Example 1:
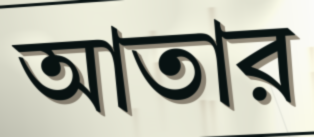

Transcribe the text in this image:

আতার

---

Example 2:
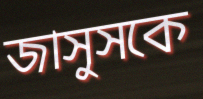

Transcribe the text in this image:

জাসুসকে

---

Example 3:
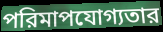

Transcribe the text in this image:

পরিমাপযোগ্যতার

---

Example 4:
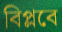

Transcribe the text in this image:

বিপ্লবে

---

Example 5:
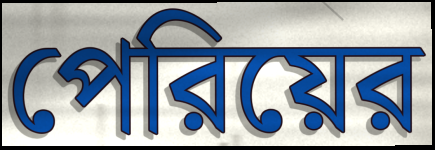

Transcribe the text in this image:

পেরিয়ের